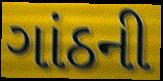
ગાંઠની